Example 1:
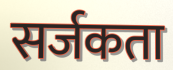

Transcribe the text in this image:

सर्जकता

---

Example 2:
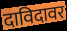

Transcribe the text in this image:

दाविदावर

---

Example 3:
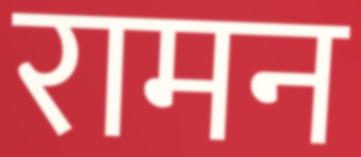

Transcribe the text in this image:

रामन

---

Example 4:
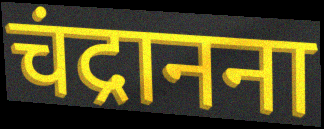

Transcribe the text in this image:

चंद्रानना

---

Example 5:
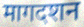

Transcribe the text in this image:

मागदशन